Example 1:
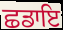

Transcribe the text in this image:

ਛਡਾਇ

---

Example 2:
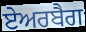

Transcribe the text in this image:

ਏਅਰਬੈਗ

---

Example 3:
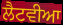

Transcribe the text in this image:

ਲੈਟਵੀਆ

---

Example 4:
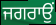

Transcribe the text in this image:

ਜਗਰਾਉਂ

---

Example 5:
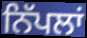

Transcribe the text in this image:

ਨਿੱਪਲਾਂ